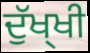
ਦੁੱਖ੍ਖੀ